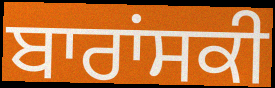
ਬਾਰਾਂਸਕੀ